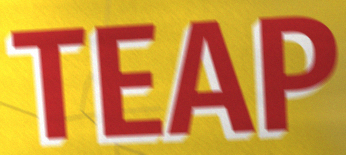
TEAP